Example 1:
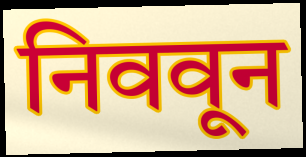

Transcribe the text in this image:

निववून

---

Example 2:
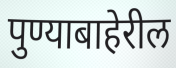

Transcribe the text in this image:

पुण्याबाहेरील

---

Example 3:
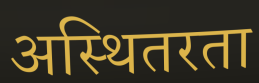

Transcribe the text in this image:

अस्थितरता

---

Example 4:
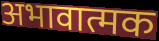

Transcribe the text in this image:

अभावात्मक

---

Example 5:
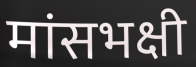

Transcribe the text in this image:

मांसभक्षी